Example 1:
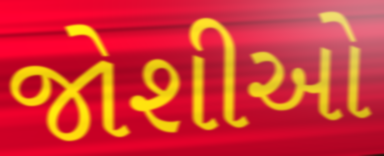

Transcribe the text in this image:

જોશીઓ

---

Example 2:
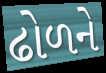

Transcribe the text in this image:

ઢોળને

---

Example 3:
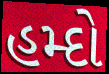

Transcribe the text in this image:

હમ્દો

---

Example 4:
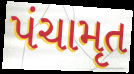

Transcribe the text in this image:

પંચામૃત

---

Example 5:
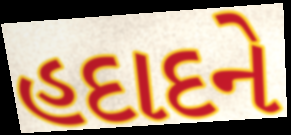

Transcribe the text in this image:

હદાદને